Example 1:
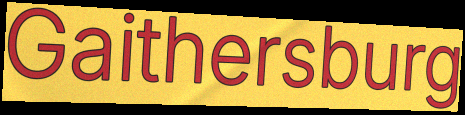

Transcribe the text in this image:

Gaithersburg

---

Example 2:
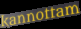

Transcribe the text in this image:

kannottam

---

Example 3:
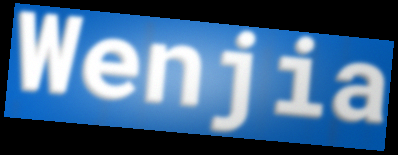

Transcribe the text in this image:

Wenjia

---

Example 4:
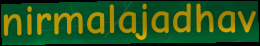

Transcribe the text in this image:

nirmalajadhav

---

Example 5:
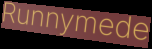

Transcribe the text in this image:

Runnymede